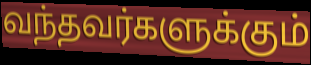
வந்தவர்களுக்கும்